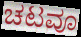
ಚಟವೂ